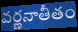
వర్ణనాతీతం